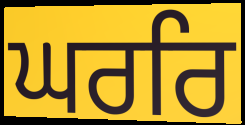
ਘਰਰਿ